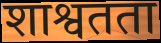
शाश्वतता